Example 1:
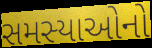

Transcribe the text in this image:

સમસ્યાઓનો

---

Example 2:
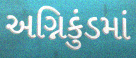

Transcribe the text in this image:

અગ્નિકુંડમાં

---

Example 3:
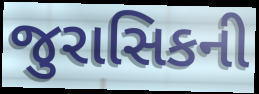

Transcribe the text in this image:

જુરાસિકની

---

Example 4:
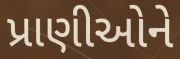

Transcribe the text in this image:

પ્રાણીઓને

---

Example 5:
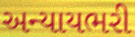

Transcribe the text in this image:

અન્યાયભરી